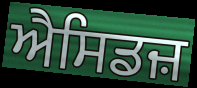
ਐਸਿਡਜ਼